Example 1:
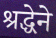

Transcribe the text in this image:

श्रद्धेने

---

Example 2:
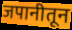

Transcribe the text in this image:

जपानीतून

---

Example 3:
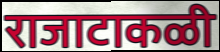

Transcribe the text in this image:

राजाटाकळी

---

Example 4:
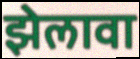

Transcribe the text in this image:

झेलावा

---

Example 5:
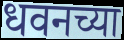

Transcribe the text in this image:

धवनच्या